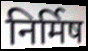
निर्मिष